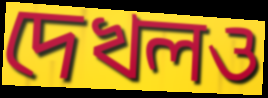
দেখলও